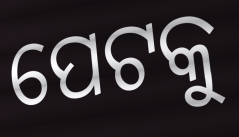
ପେଟକୁ